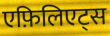
एफ़िलिएट्स